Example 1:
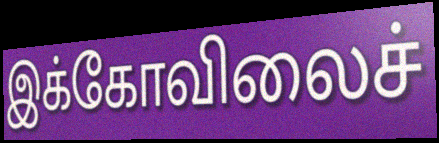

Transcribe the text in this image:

இக்கோவிலைச்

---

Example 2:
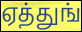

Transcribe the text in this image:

ஏத்துங்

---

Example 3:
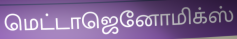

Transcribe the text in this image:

மெட்டாஜெனோமிக்ஸ்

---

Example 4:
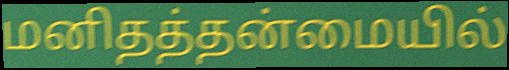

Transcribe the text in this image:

மனிதத்தன்மையில்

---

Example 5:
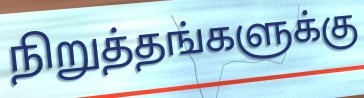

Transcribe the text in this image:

நிறுத்தங்களுக்கு